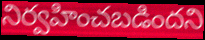
నిర్వహించబడిందని